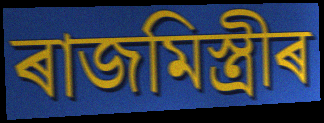
ৰাজমিস্ত্ৰীৰ